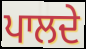
ਪਾਲਦੇ